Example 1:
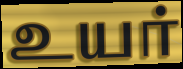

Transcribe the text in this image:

உயர்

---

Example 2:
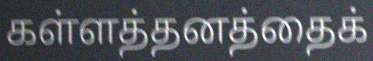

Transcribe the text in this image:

கள்ளத்தனத்தைக்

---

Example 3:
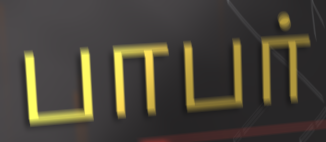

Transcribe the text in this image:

பாபர்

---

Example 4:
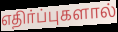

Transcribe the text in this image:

எதிர்ப்புகளால்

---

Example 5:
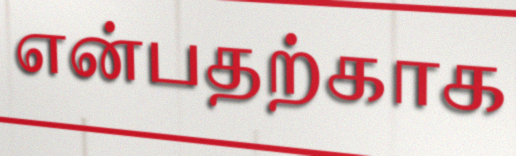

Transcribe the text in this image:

என்பதற்காக